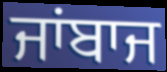
ਜਾਂਬਾਜ